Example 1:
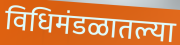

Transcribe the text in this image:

विधिमंडळातल्या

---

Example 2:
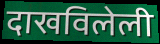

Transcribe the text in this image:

दाखविलेली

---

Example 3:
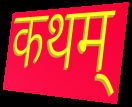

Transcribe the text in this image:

कथम्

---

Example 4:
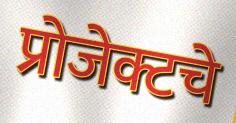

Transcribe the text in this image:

प्रोजेक्टचे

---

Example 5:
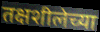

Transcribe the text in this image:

तक्षशीलेच्या